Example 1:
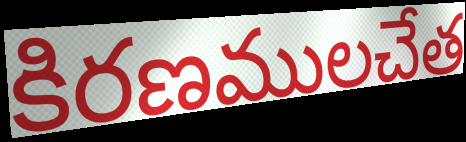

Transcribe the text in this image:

కిరణములచేత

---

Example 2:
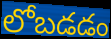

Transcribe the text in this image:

లోబడడం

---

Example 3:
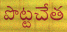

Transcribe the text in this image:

పొట్టచేత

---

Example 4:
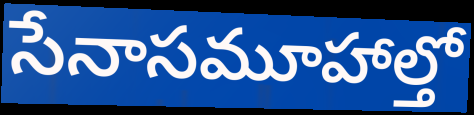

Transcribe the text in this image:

సేనాసమూహాల్తో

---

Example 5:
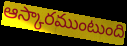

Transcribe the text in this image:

ఆస్కారముంటుంది